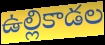
ఉల్లికాడల